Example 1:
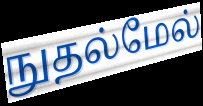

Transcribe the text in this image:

நுதல்மேல்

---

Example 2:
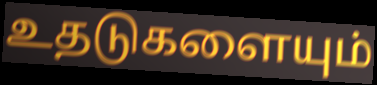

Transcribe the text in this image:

உதடுகளையும்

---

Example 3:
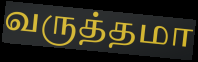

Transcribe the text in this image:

வருத்தமா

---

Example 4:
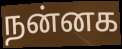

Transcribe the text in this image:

நன்னக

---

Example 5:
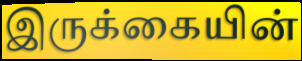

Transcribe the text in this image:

இருக்கையின்